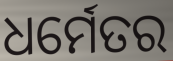
ଧର୍ମେତର